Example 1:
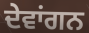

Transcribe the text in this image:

ਦੇਵਾਂਗਨ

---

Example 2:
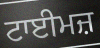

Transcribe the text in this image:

ਟਾਈਮਜ਼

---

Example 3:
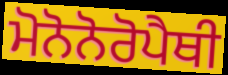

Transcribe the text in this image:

ਮੋਨੋਨੋਰੋਪੈਥੀ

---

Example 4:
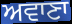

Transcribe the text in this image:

ਅਵਾਣਾ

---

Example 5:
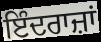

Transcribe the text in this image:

ਇੰਦਰਾਜ਼ਾਂ